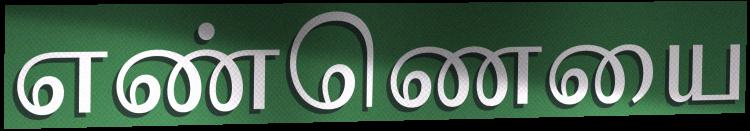
எண்ணெயை